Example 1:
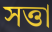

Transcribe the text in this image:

সত্তা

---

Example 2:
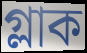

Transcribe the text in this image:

গ্লাক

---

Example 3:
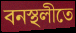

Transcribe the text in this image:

বনস্থলীতে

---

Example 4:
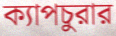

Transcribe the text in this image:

ক্যাপচুরার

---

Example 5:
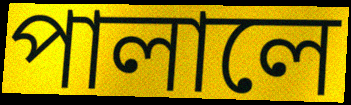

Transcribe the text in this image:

পালালে